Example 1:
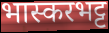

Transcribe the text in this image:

भास्करभट्ट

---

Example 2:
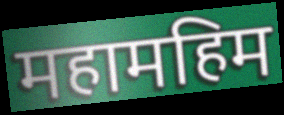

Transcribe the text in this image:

महामहिम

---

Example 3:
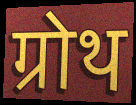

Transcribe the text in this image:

ग्रोथ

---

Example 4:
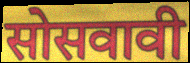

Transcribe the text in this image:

सोसवावी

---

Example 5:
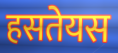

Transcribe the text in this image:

हसतेयस